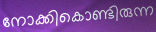
നോക്കികൊണ്ടിരുന്ന